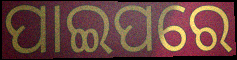
ପାଇପରେ